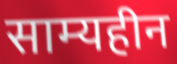
साम्यहीन